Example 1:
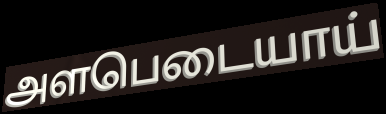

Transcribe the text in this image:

அளபெடையாய்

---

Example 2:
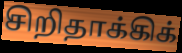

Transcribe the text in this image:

சிறிதாக்கிக்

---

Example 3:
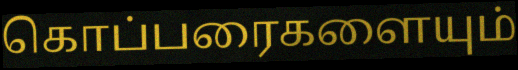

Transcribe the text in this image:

கொப்பரைகளையும்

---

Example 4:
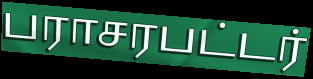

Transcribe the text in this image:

பராசரபட்டர்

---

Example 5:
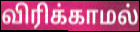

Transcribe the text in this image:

விரிக்காமல்